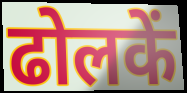
ढोलकें